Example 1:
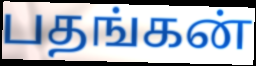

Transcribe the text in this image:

பதங்கன்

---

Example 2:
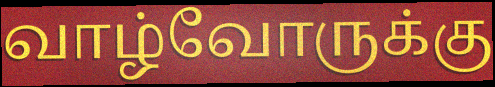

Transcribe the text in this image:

வாழ்வோருக்கு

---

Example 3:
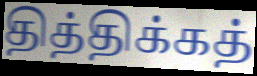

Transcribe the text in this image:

தித்திக்கத்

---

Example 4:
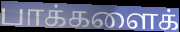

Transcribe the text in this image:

பாக்களைக்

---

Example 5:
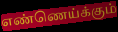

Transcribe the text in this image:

எண்ணெய்க்கும்